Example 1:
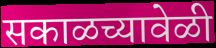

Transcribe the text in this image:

सकाळच्यावेळी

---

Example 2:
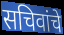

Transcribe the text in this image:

सचिवांचे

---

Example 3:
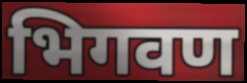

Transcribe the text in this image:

भिगवण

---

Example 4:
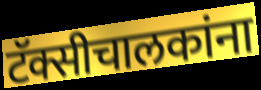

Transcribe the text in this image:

टॅक्सीचालकांना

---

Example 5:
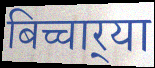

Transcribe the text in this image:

बिच्चार्या